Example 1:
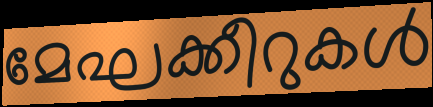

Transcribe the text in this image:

മേഘക്കീറുകൾ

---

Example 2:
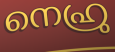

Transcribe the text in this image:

നെഹ്രു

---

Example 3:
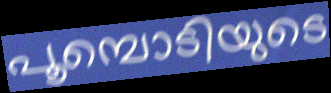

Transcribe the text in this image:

പൂമ്പൊടിയുടെ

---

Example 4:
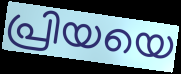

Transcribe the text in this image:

പ്രിയയെ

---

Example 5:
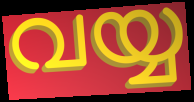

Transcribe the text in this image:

വയ്യ